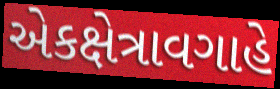
એકક્ષેત્રાવગાહે